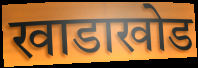
खाडाखोड